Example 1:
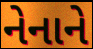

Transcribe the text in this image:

નેનાને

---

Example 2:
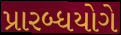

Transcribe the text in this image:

પ્રારબ્ધયોગે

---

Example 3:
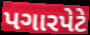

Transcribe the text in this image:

પગારપેટે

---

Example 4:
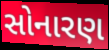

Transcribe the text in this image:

સોનારણ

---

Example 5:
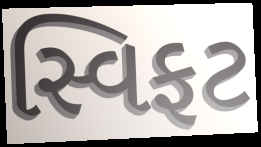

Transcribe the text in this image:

સ્વિફટ